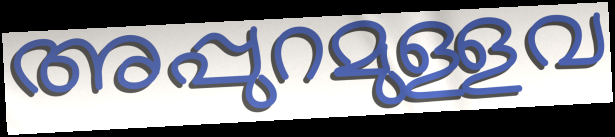
അപ്പുറമുള്ളവ